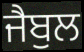
ਜੈਬੁਲ